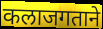
कलाजगताने